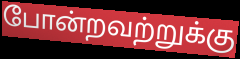
போன்றவற்றுக்கு